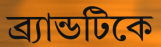
ব্র্যান্ডটিকে